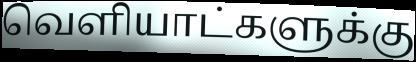
வெளியாட்களுக்கு